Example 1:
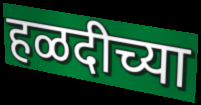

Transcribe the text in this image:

हळदीच्या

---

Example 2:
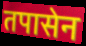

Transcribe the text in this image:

तपासेन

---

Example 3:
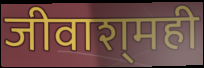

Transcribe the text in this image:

जीवाश्मही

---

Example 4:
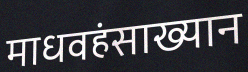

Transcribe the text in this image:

माधवहंसाख्यान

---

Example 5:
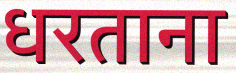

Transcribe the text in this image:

धरताना